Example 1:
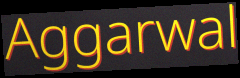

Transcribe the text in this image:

Aggarwal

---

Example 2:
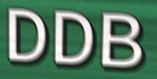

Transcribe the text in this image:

DDB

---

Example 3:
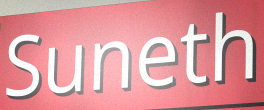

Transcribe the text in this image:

Suneth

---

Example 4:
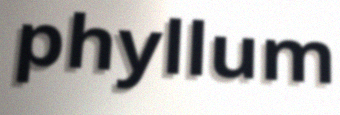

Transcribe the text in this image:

phyllum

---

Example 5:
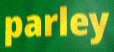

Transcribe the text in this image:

parley